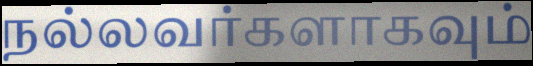
நல்லவர்களாகவும்